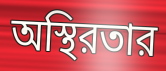
অস্থিরতার